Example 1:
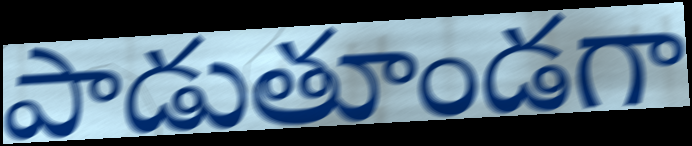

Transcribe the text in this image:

పాడుతూండగా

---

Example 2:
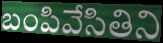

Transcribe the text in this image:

బంపివేసితిని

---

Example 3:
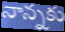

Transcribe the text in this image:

నాన్నకు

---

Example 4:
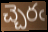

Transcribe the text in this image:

చ్చెరఁ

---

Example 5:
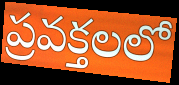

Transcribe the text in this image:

ప్రవక్తలలో